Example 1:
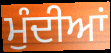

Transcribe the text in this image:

ਮੁੰਦੀਆਂ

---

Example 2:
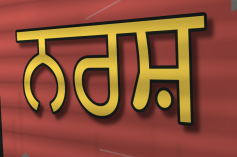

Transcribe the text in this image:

ਨਰਸ਼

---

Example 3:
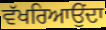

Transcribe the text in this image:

ਵੱਖਰਿਆਉਂਦਾ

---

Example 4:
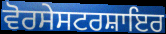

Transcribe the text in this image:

ਵੋਰਸੇਸਟਰਸ਼ਾਇਰ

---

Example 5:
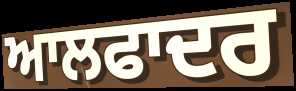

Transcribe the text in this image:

ਆਲਫਾਦਰ